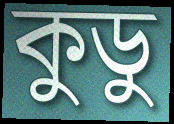
কুডু